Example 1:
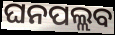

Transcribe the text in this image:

ଘନପଲ୍ଲବ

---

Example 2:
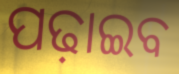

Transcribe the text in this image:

ପଢ଼ାଇବ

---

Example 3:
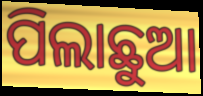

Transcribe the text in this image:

ପିଲାଛୁଆ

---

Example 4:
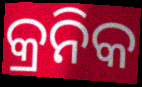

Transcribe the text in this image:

କ୍ରନିକ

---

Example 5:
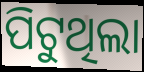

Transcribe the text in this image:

ପିଟୁଥିଲା